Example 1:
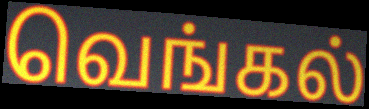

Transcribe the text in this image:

வெங்கல்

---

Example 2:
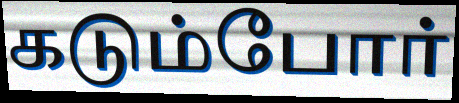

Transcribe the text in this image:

கடும்போர்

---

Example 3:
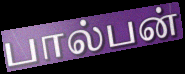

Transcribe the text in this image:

பால்பன்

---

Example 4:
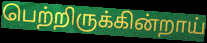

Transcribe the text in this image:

பெற்றிருக்கின்றாய்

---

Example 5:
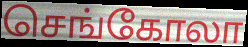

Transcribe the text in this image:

செங்கோலா